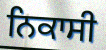
ਨਿਕਾਸੀ